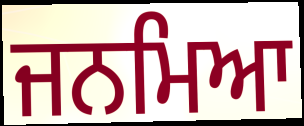
ਜਨਮਿਆ